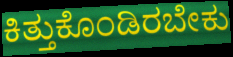
ಕಿತ್ತುಕೊಂಡಿರಬೇಕು